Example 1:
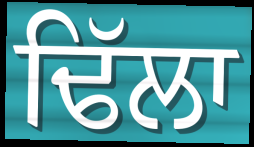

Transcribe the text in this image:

ਢਿੱਲਾ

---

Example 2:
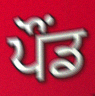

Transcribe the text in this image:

ਪੌਂਡ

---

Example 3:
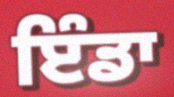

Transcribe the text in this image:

ਇੰਡਾ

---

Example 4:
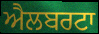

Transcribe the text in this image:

ਐਲਬਰਟਾ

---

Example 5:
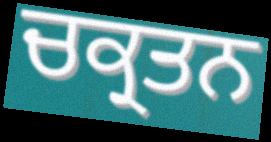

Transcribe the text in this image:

ਚਕ੍ਰਤਨ